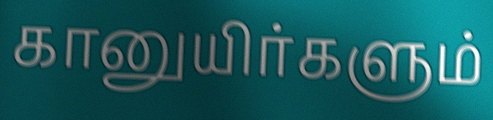
கானுயிர்களும்